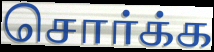
சொர்க்க